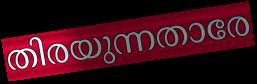
തിരയുന്നതാരേ